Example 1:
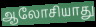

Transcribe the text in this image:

ஆலோசியாது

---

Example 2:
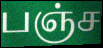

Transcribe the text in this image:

பஞ்ச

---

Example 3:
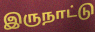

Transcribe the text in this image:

இருநாட்டு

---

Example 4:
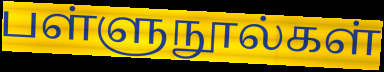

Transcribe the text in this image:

பள்ளுநூல்கள்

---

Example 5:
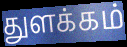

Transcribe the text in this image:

துளக்கம்